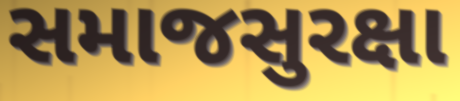
સમાજસુરક્ષા